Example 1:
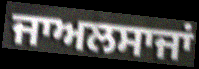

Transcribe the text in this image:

ਜਾਅਲਸਾਜਾਂ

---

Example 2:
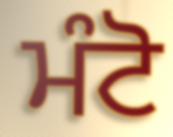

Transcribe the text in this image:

ਮੰਟੋ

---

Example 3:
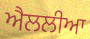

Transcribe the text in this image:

ਐਲਲੀਆ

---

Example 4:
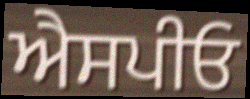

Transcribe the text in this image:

ਐਸਪੀਓ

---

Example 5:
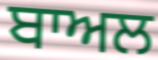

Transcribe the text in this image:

ਬਾਅਲ